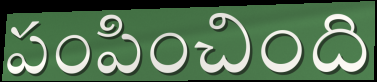
పంపించింది